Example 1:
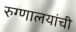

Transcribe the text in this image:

रुग्णालयांची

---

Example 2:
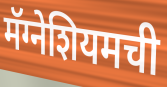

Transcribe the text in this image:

मॅग्नेशियमची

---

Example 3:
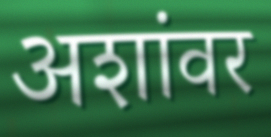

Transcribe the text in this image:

अशांवर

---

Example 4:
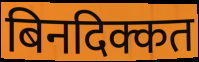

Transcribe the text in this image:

बिनदिक्कत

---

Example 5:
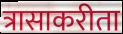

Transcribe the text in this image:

त्रासाकरीता